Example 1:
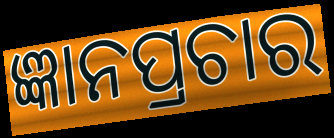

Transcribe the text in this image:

ଜ୍ଞାନପ୍ରଚାର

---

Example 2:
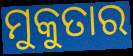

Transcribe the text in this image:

ମୁକୁତାର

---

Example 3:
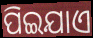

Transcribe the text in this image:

ପିଇଯାଏ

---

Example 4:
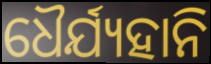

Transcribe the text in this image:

ଧୈର୍ଯ୍ୟହାନି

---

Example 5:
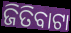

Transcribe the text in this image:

ଜିତିବାଟା